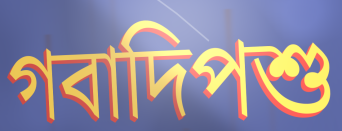
গবাদিপশু